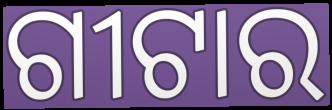
ଗୀଟାର